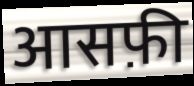
आसफ़ी